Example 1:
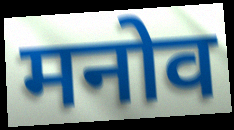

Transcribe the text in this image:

मनोव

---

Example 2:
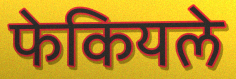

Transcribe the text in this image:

फेकियले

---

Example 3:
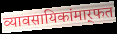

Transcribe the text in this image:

व्यावसायिकांमार्फत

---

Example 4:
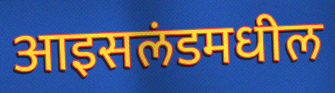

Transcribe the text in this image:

आइसलंडमधील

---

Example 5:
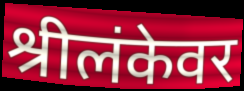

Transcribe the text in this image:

श्रीलंकेवर